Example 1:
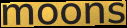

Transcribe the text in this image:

moons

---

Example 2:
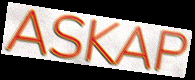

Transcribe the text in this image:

ASKAP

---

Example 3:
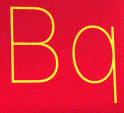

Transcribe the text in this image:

Bq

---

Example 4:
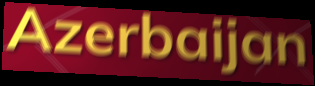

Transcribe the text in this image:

Azerbaijan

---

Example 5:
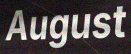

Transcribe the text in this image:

August